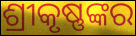
ଶ୍ରୀକୃଷ୍ଣଙ୍କର